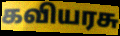
கவியரசு